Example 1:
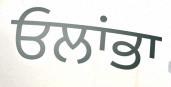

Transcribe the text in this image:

ਓਲਾਂਭਾ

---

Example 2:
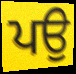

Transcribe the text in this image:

ਪਉ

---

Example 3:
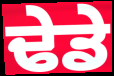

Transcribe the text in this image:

ਢੇਡੇ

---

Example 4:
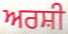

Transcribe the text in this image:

ਅਰਸ਼ੀ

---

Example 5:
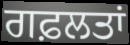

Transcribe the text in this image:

ਗਫ਼ਲਤਾਂ